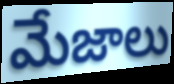
మేజాలు